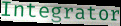
Integrator